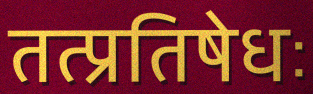
तत्प्रतिषेधः